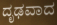
ದೃಢವಾದ